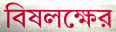
বিষলক্ষের